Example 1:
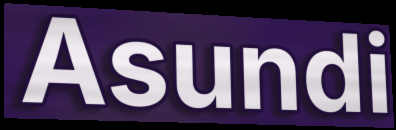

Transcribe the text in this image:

Asundi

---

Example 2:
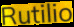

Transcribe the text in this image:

Rutilio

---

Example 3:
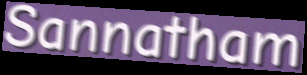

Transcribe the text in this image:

Sannatham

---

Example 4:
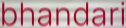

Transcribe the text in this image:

bhandari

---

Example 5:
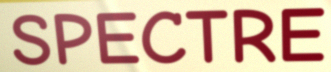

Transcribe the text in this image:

SPECTRE